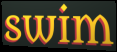
swim